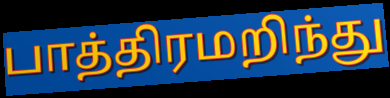
பாத்திரமறிந்து